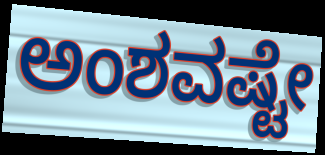
ಅಂಶವಷ್ಟೇ